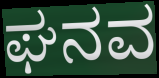
ಘನವ